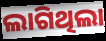
ଲାଗିଥିଲା